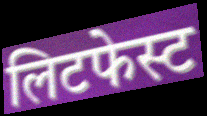
लिटफेस्ट